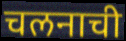
चलनाची